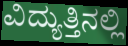
ವಿದ್ಯುತ್ತಿನಲ್ಲಿ